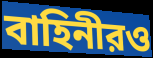
বাহিনীরও